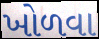
ખોળવા